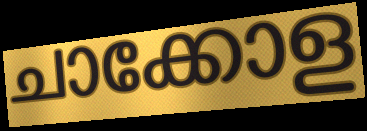
ചാക്കോള